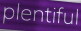
plentiful